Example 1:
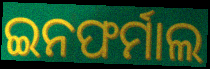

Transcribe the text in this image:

ଇନଫର୍ମାଲ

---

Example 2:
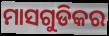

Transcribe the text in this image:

ମାସଗୁଡିକର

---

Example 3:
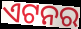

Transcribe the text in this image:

ଏଟନର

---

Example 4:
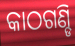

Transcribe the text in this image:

କାଠଗଣ୍ଡି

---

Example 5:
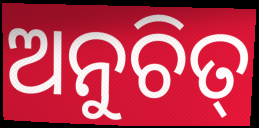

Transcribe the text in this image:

ଅନୁଚିତ୍